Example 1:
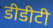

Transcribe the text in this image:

डीडीटी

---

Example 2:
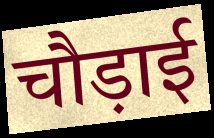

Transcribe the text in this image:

चौड़ाई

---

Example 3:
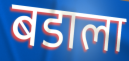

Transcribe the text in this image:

बडाला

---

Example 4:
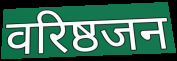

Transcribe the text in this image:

वरिष्ठजन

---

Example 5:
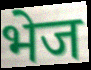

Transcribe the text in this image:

भेज